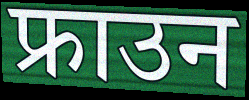
फ्राउन